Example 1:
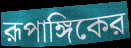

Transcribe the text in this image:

রূপাঙ্গিকের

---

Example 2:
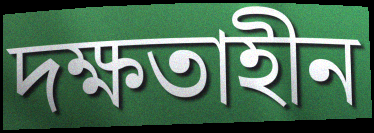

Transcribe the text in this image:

দক্ষতাহীন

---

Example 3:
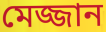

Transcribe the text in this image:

মেজ্জান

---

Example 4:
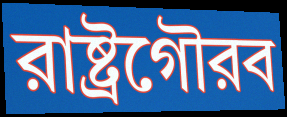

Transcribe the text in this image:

রাষ্ট্রগৌরব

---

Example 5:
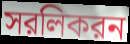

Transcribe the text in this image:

সরলিকরন